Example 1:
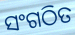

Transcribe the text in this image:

ସଂଗଠିତ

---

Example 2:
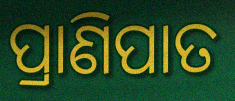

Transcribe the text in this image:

ପ୍ରାଣିପାତ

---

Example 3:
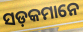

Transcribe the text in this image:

ସଡ଼କମାନେ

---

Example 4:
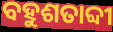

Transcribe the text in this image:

ବହୁଶତାବ୍ଦୀ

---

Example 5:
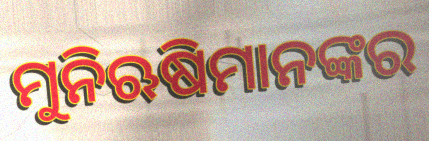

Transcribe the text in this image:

ମୁନିଋଷିମାନଙ୍କର